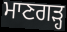
ਮਾਣਗੜ੍ਹ